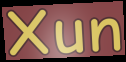
Xun